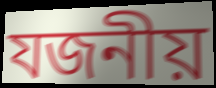
যজনীয়